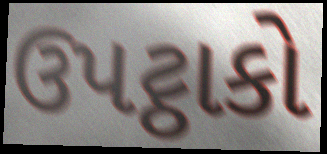
ઉપટ્ઠાકો